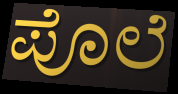
ಪೊಲೆ